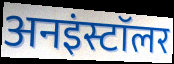
अनइंस्टॉलर